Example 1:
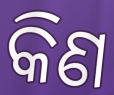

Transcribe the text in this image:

କିଣ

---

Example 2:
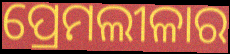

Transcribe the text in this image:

ପ୍ରେମଲୀଳାର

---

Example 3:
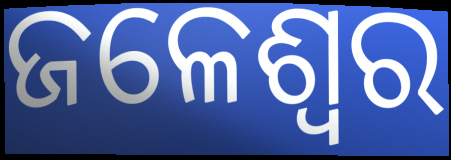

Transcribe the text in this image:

ଜଳେଶ୍ବର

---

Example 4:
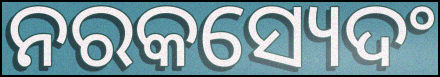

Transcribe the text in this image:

ନରକସ୍ୟେଦଂ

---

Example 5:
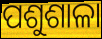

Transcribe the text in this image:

ପଶୁଶାଳା